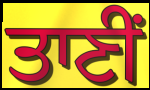
ਤਾਣੀਂ